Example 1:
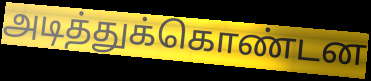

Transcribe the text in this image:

அடித்துக்கொண்டன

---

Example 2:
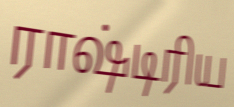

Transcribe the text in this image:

ராஷ்டிரிய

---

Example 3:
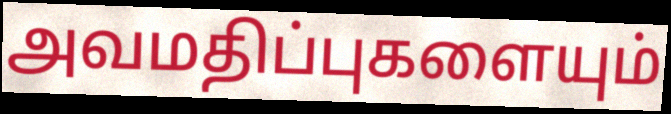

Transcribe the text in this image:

அவமதிப்புகளையும்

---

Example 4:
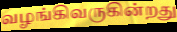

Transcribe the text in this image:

வழங்கிவருகின்றது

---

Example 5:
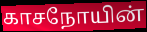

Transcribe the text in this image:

காசநோயின்